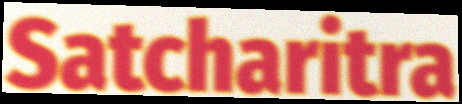
Satcharitra